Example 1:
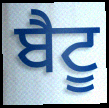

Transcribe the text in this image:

ਬੈਟੂ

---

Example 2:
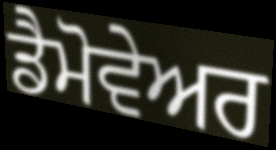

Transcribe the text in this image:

ਡੈਮੋਵੇਅਰ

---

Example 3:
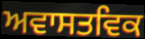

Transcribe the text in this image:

ਅਵਾਸਤਵਿਕ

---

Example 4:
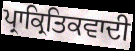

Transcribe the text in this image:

ਪ੍ਰਾਕ੍ਰਿਤਿਕਵਾਦੀ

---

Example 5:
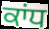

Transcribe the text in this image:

ਕਾਂਧ